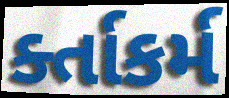
ર્ક્તાકર્મ